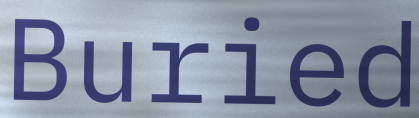
Buried